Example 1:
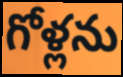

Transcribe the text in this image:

గోళ్లను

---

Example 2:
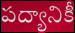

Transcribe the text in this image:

పద్యానికీ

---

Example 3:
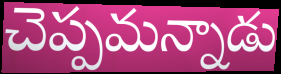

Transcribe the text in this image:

చెప్పమన్నాడు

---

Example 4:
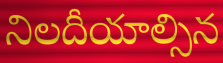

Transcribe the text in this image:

నిలదీయాల్సిన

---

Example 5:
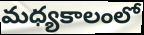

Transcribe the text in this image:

మధ్యకాలంలో